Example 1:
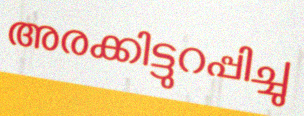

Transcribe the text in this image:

അരക്കിട്ടുറപ്പിച്ചു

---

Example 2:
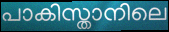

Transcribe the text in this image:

പാകിസ്താനിലെ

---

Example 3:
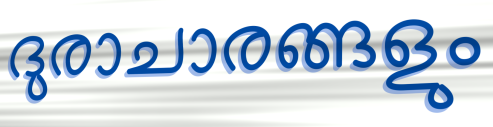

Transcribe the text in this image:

ദുരാചാരങ്ങളും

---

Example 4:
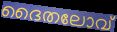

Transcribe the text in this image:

ദൈതലോവ്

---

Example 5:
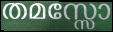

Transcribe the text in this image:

തമസ്സോ